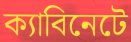
ক্যাবিনেটে